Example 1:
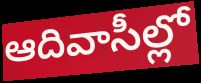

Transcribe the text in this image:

ఆదివాసీల్లో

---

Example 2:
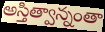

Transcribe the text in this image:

అస్తిత్వాన్నంతా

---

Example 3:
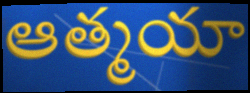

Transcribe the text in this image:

ఆత్మయా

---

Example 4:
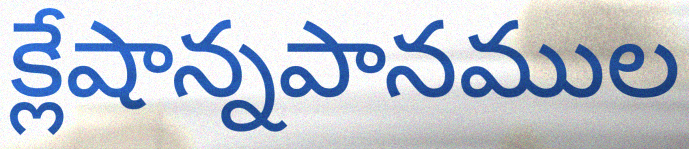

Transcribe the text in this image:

క్లేషాన్నపానముల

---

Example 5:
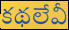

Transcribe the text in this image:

కథలేవీ